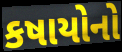
કષાયોનો